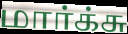
மார்க்சு